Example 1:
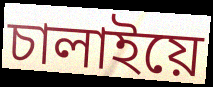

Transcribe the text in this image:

চালাইয়ে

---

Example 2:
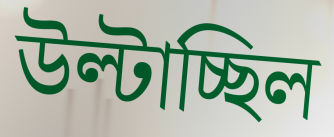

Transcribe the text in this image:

উল্টাচ্ছিল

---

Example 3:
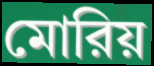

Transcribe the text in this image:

মোরিয়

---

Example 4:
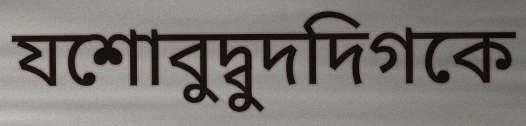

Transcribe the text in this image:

যশোবুদ্বুদদিগকে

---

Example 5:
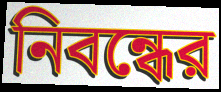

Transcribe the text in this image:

নিবন্ধের